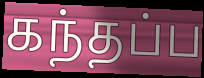
கந்தப்ப